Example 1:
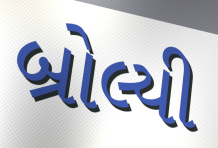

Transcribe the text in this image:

બ્રોલ્યી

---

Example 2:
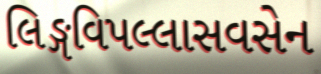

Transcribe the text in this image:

લિઙ્ગવિપલ્લાસવસેન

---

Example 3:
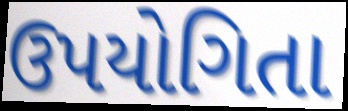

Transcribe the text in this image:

ઉપયોગિતા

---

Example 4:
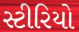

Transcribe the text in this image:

સ્ટીરિયો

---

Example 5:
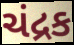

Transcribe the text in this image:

ચંદ્રક